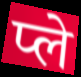
प्ले